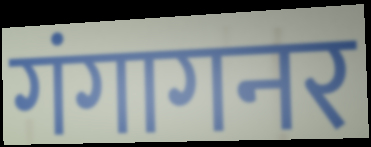
गंगागनर